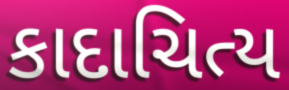
કાદાચિત્ય